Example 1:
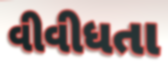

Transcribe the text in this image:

વીવીધતા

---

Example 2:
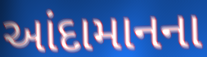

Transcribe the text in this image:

આંદામાનના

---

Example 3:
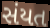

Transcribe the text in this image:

સંયત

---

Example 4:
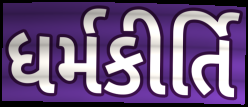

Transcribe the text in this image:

ધર્મકીર્તિ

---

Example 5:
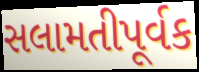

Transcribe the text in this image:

સલામતીપૂર્વક